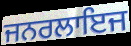
ਜਨਰਲਾਇਜ